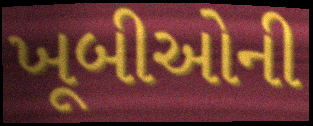
ખૂબીઓની